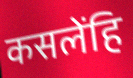
कसलेंहि